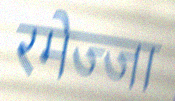
रमेज्जा